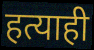
हत्याही